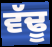
ਵੱਢੂ